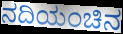
ನದಿಯಂಚಿನ